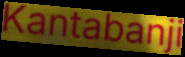
Kantabanji